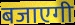
बजाएगी